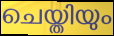
ചെയ്തിയും